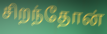
சிறந்தோன்